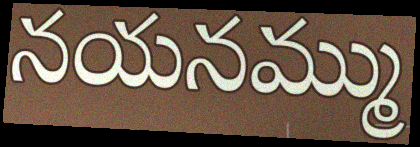
నయనమ్ము